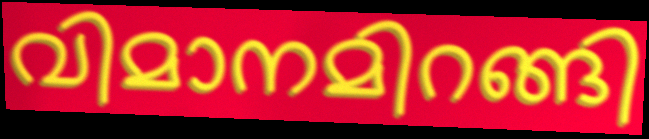
വിമാനമിറങ്ങി